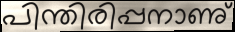
പിന്തിരിപ്പനാണു്